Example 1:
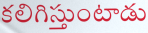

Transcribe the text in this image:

కలిగిస్తుంటాడు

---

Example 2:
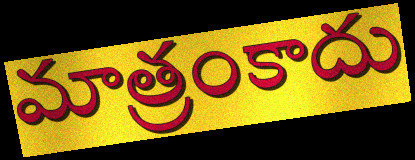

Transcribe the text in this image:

మాత్రంకాదు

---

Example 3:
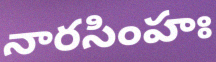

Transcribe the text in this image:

నారసింహః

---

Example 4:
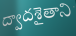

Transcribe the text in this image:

ద్వాదశైతాని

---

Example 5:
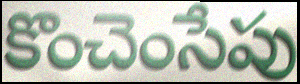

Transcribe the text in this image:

కొంచెంసేపు